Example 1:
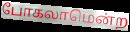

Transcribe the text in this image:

போகலாமென்ற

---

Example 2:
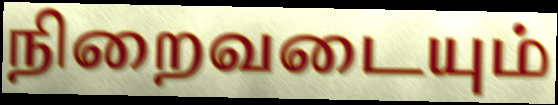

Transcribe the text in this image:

நிறைவடையும்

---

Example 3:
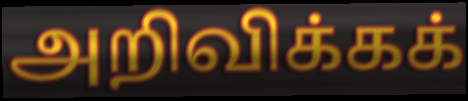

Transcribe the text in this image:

அறிவிக்கக்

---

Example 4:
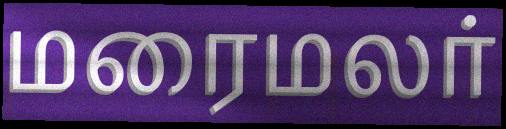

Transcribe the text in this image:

மரைமலர்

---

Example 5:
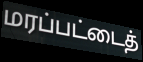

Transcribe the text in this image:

மரப்பட்டைத்